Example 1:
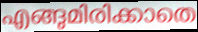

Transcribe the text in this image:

എങ്ങുമിരിക്കാതെ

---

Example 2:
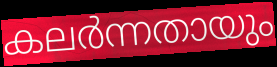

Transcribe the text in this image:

കലർന്നതായും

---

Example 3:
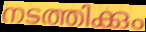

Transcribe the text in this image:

നടത്തിക്കും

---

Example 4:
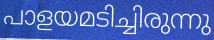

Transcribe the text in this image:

പാളയമടിച്ചിരുന്നു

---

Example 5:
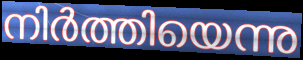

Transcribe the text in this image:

നിർത്തിയെന്നു